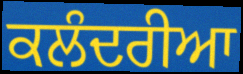
ਕਲੰਦਰੀਆ